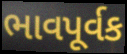
ભાવપૂર્વક